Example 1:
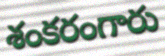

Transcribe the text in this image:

శంకరంగారు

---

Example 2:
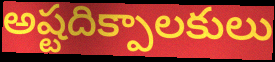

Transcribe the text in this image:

అష్టదిక్పాలకులు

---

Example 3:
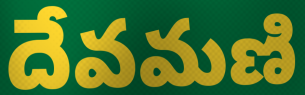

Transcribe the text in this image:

దేవమణి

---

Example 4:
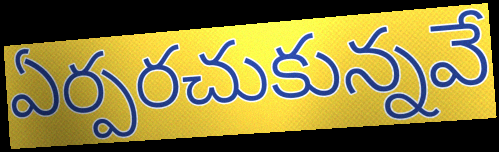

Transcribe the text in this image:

ఏర్పరచుకున్నవే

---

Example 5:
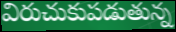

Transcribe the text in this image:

విరుచుకుపడుతున్న